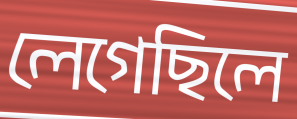
লেগেছিলে